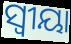
ସ୍ଵୀୟା